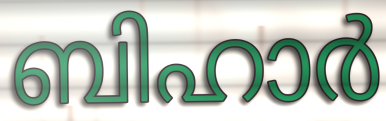
ബിഹാർ